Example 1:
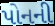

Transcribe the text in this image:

પોનની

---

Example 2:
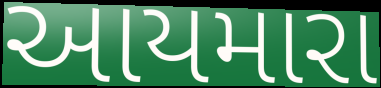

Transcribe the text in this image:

આયમારા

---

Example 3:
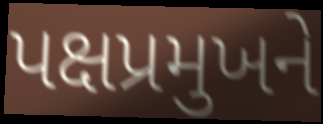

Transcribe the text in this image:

પક્ષપ્રમુખને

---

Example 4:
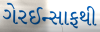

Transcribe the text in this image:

ગેરઈન્સાફથી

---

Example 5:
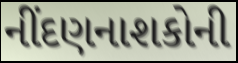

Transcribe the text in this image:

નીંદણનાશકોની